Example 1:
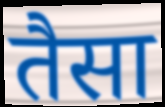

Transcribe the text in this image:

तैसा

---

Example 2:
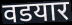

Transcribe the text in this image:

वडयार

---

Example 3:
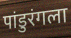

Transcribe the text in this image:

पांडुरंगला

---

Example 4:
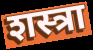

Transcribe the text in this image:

शस्त्रा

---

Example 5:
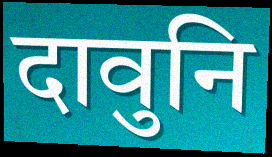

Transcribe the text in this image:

दावुनि